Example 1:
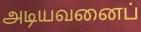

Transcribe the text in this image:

அடியவனைப்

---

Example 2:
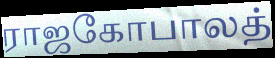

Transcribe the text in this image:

ராஜகோபாலத்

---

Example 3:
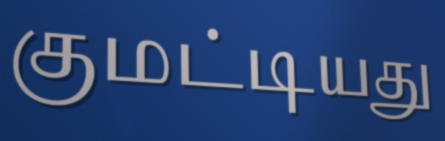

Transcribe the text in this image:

குமட்டியது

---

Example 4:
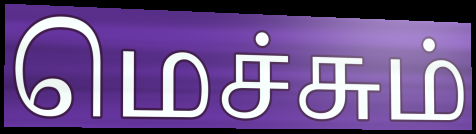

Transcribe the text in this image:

மெச்சும்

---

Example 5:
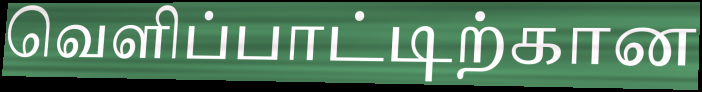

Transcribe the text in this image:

வெளிப்பாட்டிற்கான